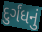
દુર્ગંધનું